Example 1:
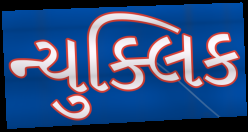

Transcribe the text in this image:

ન્યુક્લિક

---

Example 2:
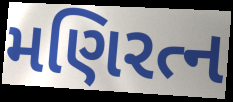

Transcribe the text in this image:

મણિરત્ન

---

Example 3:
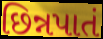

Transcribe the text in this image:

છિન્નપાતં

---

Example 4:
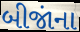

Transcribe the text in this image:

બીજાંના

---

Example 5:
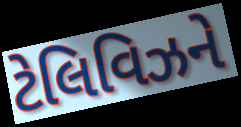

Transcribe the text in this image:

ટેલિવિઝને